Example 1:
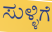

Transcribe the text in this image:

ಸುಳ್ಳಿಗೆ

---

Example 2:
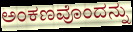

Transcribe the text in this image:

ಅಂಕಣವೊಂದನ್ನು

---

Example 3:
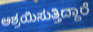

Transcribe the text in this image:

ಆಶ್ರಯಿಸುತ್ತಿದ್ದಾರೆ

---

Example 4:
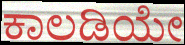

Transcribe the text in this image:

ಕಾಲಡಿಯೇ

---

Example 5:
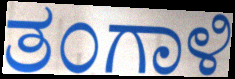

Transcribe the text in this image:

ತಂಗಾಳಿ